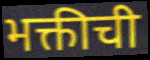
भक्तीची